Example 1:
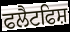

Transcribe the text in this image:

ਫਲੈਟਫਿਸ਼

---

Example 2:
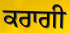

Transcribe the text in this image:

ਕਰਾਗੀ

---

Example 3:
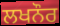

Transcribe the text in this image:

ਲਖਨੌਰ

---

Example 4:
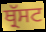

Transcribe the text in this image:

ਥ੍ਰੱਸਟ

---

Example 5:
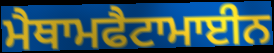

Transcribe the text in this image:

ਮੈਥਾਮਫੈਟਾਮਾਈਨ